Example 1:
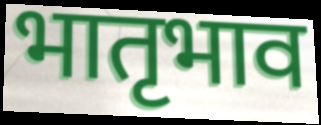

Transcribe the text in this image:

भातृभाव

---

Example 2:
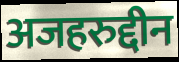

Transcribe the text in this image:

अजहरुद्दीन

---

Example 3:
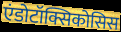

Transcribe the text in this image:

एंडोटॉक्सिकोसिस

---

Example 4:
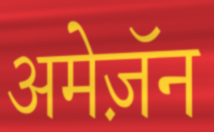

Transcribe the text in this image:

अमेज़ॅन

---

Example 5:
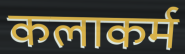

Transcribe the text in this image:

कलाकर्म